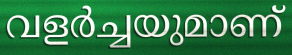
വളർച്ചയുമാണ്